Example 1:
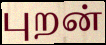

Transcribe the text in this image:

புறன்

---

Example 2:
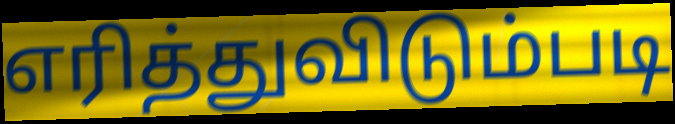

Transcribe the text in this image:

எரித்துவிடும்படி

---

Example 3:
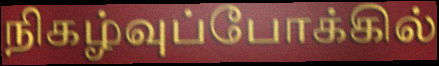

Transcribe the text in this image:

நிகழ்வுப்போக்கில்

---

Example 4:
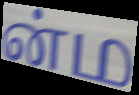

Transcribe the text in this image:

ன்ம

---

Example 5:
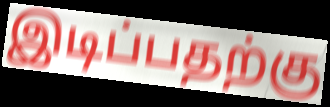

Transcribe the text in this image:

இடிப்பதற்கு